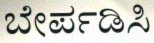
ಬೇರ್ಪಡಿಸಿ